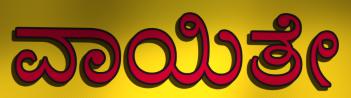
ವಾಯಿತೇ